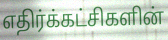
எதிர்க்கட்சிகளின்